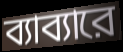
ব্যাব্যারে